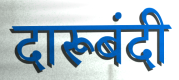
दारूबंदी